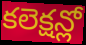
కలెక్షన్లో